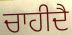
ਚਾਹੀਦੈ